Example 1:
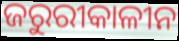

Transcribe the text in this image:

ଜରୁରୀକାଳୀନ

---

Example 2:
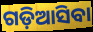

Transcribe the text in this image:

ଗଡ଼ିଆସିବା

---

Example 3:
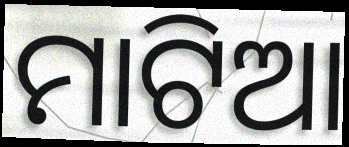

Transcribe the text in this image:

ମାଟିଆ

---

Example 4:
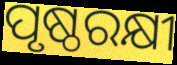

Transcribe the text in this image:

ପୃଷ୍ଠରକ୍ଷୀ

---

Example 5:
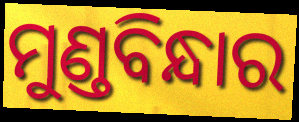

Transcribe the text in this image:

ମୁଣ୍ଡବିନ୍ଧାର